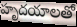
హృదయాలతో